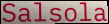
Salsola